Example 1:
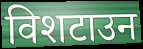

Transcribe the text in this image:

विशटाउन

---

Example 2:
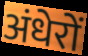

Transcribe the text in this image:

अंधेरों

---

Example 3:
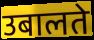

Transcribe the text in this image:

उबालते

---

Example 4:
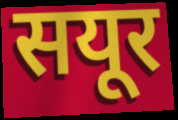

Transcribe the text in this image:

सयूर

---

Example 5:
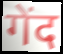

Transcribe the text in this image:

गेंद